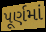
પૂર્ણમાં